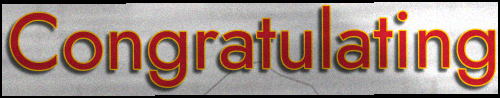
Congratulating